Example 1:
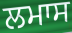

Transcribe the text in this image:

ਲਮਾਸ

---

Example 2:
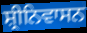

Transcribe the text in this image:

ਸ਼੍ਰੀਨਿਵਾਸਨ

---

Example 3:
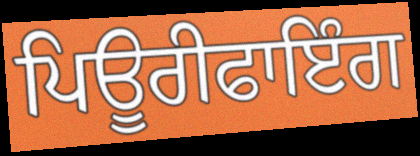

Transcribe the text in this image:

ਪਿਊਰੀਫਾਇੰਗ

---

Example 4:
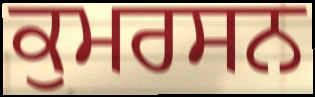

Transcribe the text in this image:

ਕੁਮਰਸਨ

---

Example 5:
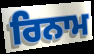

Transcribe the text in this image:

ਰਿਨਾਮ